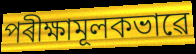
পৰীক্ষামূলকভাৱে